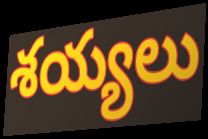
శయ్యలు